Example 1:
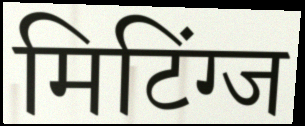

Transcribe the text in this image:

मिटिंग्ज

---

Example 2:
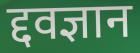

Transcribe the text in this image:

द्दवज्ञान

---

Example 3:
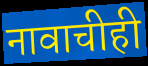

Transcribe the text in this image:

नावाचीही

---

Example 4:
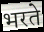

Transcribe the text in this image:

भरते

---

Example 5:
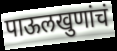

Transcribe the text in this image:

पाऊलखुणांचं